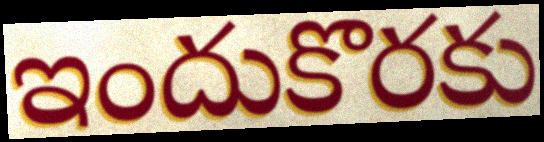
ఇందుకొరకు